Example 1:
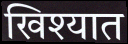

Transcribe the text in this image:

खिश्यात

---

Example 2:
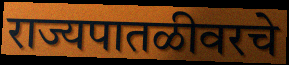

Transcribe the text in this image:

राज्यपातळीवरचे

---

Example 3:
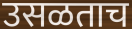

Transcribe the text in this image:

उसळताच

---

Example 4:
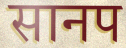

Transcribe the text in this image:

सानप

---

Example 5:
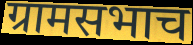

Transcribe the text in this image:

ग्रामसभाच